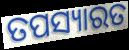
ତପସ୍ୟାରତ